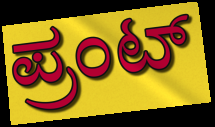
ಪ್ರಂಟ್